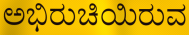
ಅಭಿರುಚಿಯಿರುವ